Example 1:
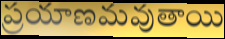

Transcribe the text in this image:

ప్రయాణమవుతాయి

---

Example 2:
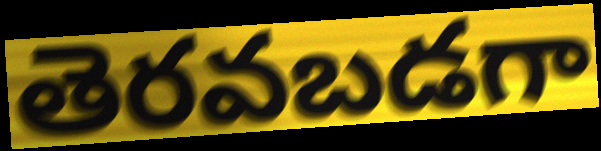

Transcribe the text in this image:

తెరవబడగా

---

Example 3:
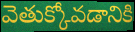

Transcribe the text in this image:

వెతుక్కోవడానికి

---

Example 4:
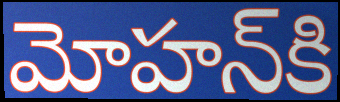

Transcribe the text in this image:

మోహన్‌కి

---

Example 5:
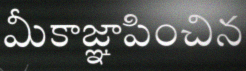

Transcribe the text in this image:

మీకాజ్ఞాపించిన